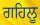
ਗਹਿਲੂ